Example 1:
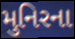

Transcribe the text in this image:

મુનિરના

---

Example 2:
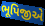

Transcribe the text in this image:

ભૂપિજીએ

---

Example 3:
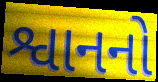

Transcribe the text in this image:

શ્વાનનો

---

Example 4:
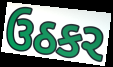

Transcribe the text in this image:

ઉઠકર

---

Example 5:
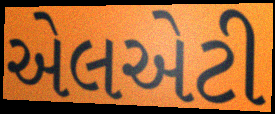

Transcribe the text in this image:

એલએટી